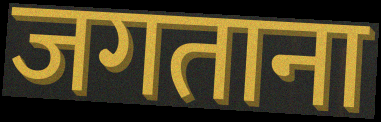
जगताना